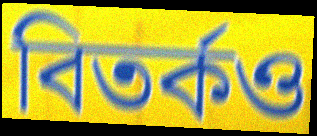
বিতৰ্কও